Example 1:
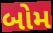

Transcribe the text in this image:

બોમ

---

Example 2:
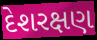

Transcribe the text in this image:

દેશરક્ષણ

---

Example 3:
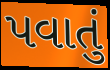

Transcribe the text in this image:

પવાતું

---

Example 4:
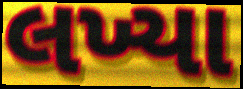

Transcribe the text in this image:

લખ્યા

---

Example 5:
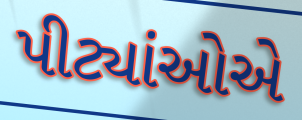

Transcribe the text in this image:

પીટ્યાંઓએ